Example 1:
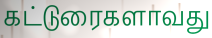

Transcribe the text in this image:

கட்டுரைகளாவது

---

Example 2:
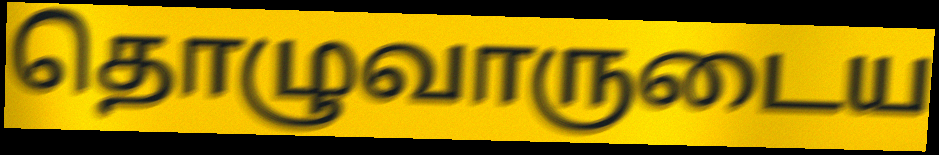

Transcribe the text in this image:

தொழுவாருடைய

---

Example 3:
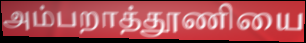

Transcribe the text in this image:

அம்பறாத்தூணியை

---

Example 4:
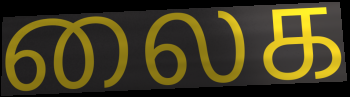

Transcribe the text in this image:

லைக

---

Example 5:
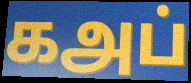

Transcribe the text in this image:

கஅப்